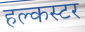
हल्कस्टर